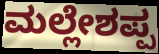
ಮಲ್ಲೇಶಪ್ಪ